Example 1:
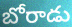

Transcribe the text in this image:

బోరాడు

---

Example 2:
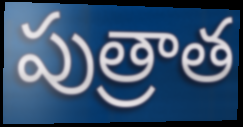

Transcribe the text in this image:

పుత్రాత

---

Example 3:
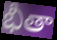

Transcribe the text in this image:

భీతా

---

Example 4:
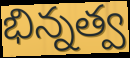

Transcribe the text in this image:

భిన్నత్వ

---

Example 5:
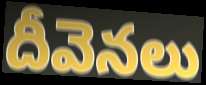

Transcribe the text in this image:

దీవెనలు